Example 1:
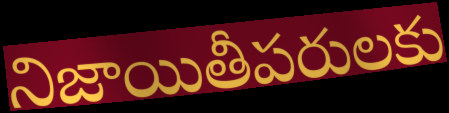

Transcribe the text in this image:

నిజాయితీపరులకు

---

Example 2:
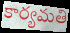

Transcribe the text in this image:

కార్యమతి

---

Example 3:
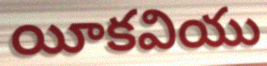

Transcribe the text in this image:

యీకవియు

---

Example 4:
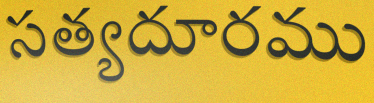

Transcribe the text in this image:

సత్యదూరము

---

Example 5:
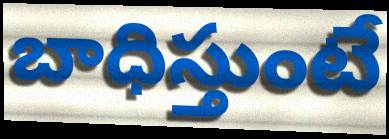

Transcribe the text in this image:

బాధిస్తుంటే